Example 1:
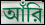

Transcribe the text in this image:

আঁরি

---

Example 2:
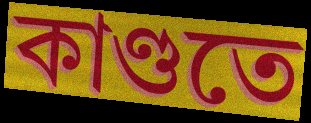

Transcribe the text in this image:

কাণ্ডতে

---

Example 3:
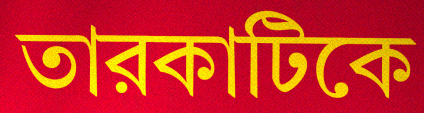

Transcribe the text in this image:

তারকাটিকে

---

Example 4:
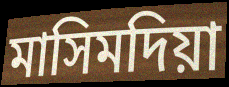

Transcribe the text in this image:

মাসিমদিয়া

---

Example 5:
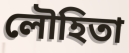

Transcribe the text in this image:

লৌহিতা